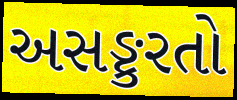
અસઙ્કરતો